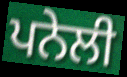
ਪਨੇਲੀ